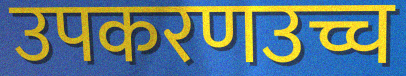
उपकरणउच्च